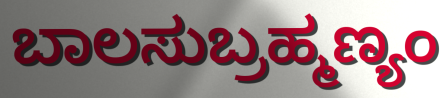
ಬಾಲಸುಬ್ರಹ್ಮಣ್ಯಂ